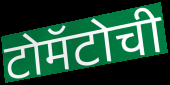
टोमॅटोची